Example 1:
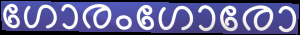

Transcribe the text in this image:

ഗോരംഗോരോ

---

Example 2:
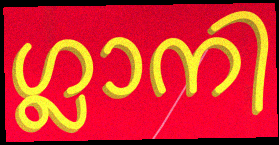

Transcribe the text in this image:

ഗ്ലാനി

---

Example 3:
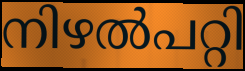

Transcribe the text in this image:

നിഴൽപറ്റി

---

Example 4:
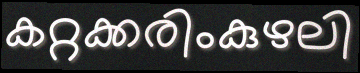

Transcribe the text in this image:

കറ്റക്കരിംകുഴലി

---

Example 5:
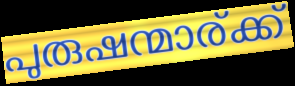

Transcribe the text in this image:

പുരുഷന്മാര്ക്ക്